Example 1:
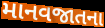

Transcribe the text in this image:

માનવજાતના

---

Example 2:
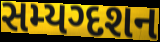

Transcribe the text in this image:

સમ્યગ્દશન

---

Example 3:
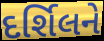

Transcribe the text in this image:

દર્શિલને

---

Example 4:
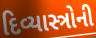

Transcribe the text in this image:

દિવ્યાસ્ત્રોની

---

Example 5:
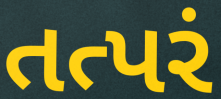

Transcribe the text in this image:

તત્પરં